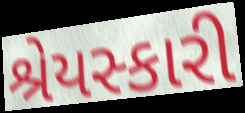
શ્રેયસ્કારી